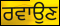
ਰਵਾਉਣ